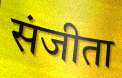
संजीता